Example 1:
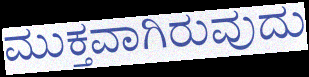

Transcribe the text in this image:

ಮುಕ್ತವಾಗಿರುವುದು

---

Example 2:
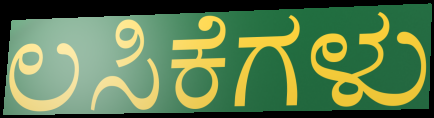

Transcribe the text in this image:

ಲಸಿಕೆಗಳು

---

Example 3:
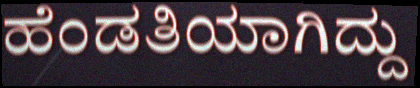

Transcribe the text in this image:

ಹೆಂಡತಿಯಾಗಿದ್ದು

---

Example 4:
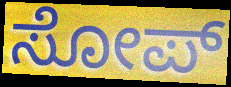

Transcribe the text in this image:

ಸೋಪ್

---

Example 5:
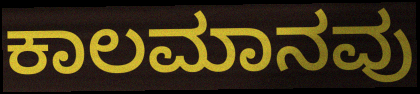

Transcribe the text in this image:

ಕಾಲಮಾನವು